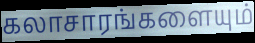
கலாசாரங்களையும்